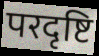
परदृष्टि